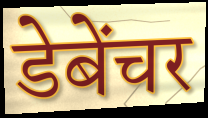
डेबेंचर